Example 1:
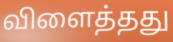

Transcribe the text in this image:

விளைத்தது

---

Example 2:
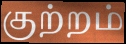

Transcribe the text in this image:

குற்றம்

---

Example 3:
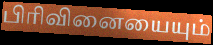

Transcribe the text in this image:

பிரிவினையையும்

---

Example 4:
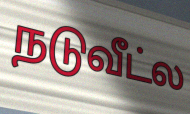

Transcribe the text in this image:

நடுவீட்ல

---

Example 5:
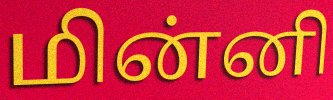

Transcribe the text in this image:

மின்னி